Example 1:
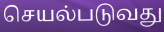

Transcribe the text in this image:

செயல்படுவது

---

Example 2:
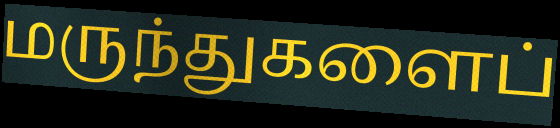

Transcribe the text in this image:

மருந்துகளைப்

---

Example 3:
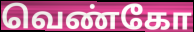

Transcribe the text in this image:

வெண்கோ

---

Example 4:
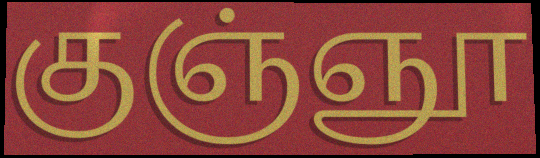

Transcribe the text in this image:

குஞ்ஞூ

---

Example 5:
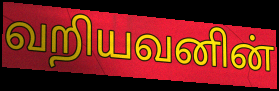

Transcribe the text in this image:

வறியவனின்